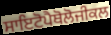
ਸਾਇਟੋਪੈਥੋਲੋਜੀਕਲ